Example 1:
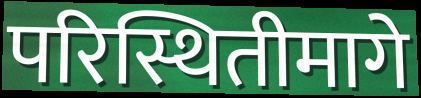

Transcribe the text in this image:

परिस्थितीमागे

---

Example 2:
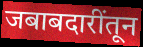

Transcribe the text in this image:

जबाबदारींतून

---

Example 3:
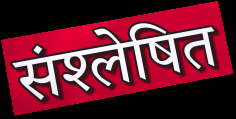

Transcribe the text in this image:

संश्लेषित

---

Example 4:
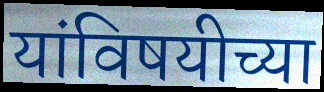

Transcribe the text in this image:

यांविषयीच्या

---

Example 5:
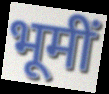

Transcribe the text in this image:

भूमीं